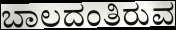
ಬಾಲದಂತಿರುವ